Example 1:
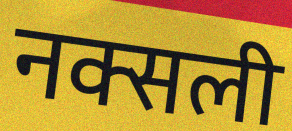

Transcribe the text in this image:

नक्सली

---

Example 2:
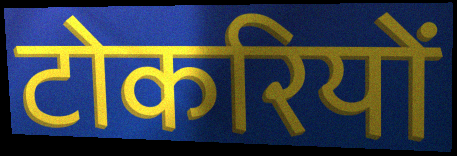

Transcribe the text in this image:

टोकरियों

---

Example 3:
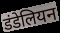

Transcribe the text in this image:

डंडेलियन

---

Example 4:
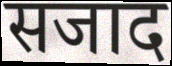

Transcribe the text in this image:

सजाद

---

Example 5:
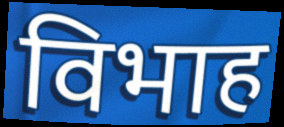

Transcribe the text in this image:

विभाह